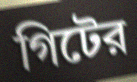
গিটের